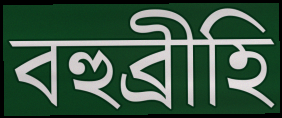
বহুব্ৰীহি